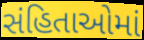
સંહિતાઓમાં